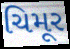
ચિમૂર